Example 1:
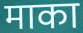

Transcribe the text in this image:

माका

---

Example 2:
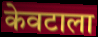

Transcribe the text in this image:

केवटाला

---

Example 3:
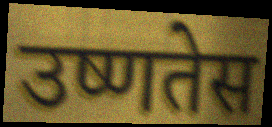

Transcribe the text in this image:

उष्णतेस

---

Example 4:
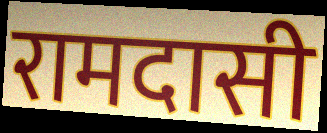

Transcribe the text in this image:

रामदासी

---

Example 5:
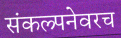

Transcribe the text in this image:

संकल्पनेवरच